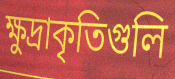
ক্ষুদ্রাকৃতিগুলি